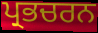
ਪ੍ਰਭਚਰਨ